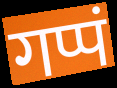
गप्पं